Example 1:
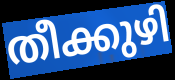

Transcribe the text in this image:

തീക്കുഴി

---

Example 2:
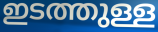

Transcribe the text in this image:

ഇടത്തുള്ള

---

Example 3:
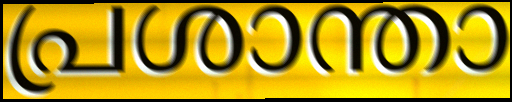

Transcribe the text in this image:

പ്രശാന്താ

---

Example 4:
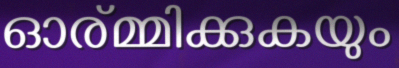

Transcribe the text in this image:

ഓര്മ്മിക്കുകയും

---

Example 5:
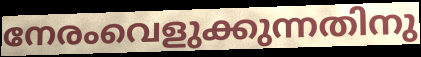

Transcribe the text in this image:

നേരംവെളുക്കുന്നതിനു